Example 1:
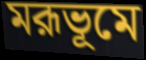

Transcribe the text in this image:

মরূভূমে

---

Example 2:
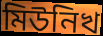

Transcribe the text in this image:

মিউনিখ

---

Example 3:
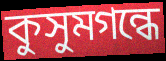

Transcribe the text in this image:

কুসুমগন্ধে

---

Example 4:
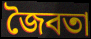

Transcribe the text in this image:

জৈবতা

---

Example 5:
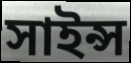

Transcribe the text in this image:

সাইন্স